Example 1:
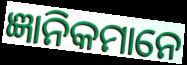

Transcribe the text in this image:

ଜ୍ଞାନିକମାନେ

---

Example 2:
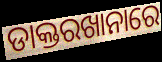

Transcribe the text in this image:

ଡାକ୍ତରଖାନାରେ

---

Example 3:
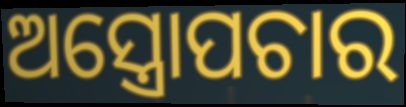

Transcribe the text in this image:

ଅସ୍ତ୍ରୋପଚାର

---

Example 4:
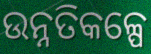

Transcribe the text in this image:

ଉନ୍ନତିକଳ୍ପେ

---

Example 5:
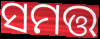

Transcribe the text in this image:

ସମତ୍ତ